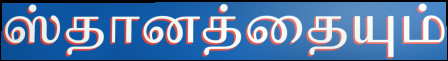
ஸ்தானத்தையும்